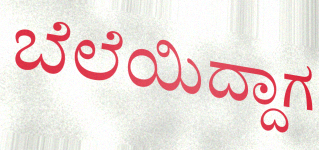
ಬೆಲೆಯಿದ್ದಾಗ